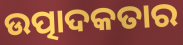
ଉତ୍ପାଦକତାର